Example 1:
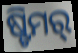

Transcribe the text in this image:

ଷ୍ଟିମର୍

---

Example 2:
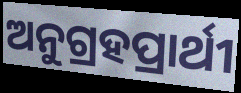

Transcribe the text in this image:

ଅନୁଗ୍ରହପ୍ରାର୍ଥୀ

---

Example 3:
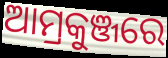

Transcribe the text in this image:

ଆମ୍ରକୁଞ୍ଜରେ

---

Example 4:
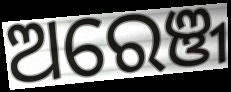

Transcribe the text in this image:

ଅରେଞ୍ଜ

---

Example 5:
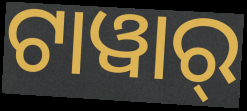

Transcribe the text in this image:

ଟାୱାର୍